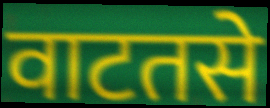
वाटतसे